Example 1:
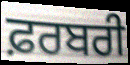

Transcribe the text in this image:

ਫ਼ਰਬਰੀ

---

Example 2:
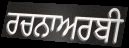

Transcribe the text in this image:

ਰਚਨਾਅਰਬੀ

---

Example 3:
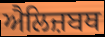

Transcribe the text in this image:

ਐਲਿਜ਼ਬਥ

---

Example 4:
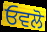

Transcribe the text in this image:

ਓਵਲੋ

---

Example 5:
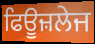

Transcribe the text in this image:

ਫਿਊਜ਼ਲੇਜ